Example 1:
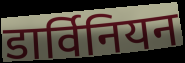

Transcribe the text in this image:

डार्विनियन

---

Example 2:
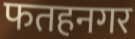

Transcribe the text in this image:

फतहनगर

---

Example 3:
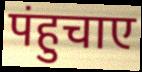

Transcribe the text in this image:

पंहुचाए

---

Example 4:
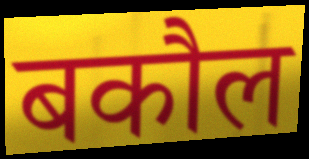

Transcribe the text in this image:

बकौल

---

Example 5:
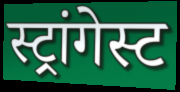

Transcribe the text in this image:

स्ट्रांगेस्ट